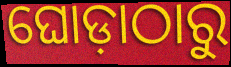
ଘୋଡ଼ାଠାରୁ